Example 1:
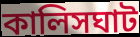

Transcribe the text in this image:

কালিসঘাট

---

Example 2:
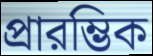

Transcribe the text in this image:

প্রারম্ভিক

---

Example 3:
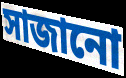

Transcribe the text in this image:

সাজানো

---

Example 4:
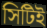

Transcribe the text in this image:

সিটিই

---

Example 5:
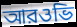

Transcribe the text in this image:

আরওভি